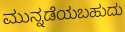
ಮುನ್ನಡೆಯಬಹುದು